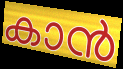
കാൻ